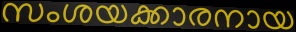
സംശയക്കാരനായ